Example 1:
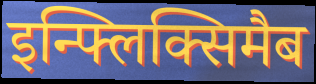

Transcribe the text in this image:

इन्फ्लिक्सिमैब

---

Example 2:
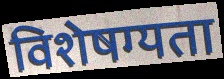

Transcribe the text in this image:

विशेषग्यता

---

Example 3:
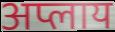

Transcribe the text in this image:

अप्लाय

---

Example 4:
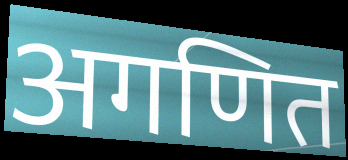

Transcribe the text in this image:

अगणित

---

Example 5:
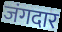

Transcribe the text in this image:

जंगदार